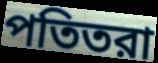
পতিতরা